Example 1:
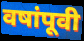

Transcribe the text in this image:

वषांपूवी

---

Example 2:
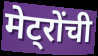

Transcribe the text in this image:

मेट्रोंची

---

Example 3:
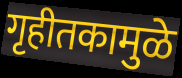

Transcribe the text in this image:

गृहीतकामुळे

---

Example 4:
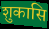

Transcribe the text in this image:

शुकासि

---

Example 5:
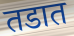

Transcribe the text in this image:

तडात